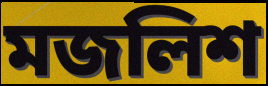
মজলিশ